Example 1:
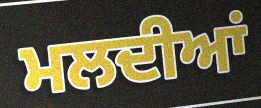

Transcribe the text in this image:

ਮਲਦੀਆਂ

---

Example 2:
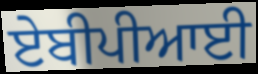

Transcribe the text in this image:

ਏਬੀਪੀਆਈ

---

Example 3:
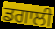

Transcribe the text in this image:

ਡਗਾਲੀ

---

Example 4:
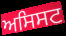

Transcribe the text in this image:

ਅਸਿਸਟ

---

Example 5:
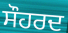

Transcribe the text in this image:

ਸੌਹਰਦ